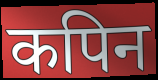
कपिन